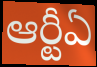
ఆర్టీఏ